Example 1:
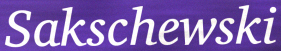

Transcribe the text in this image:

Sakschewski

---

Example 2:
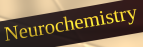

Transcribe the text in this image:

Neurochemistry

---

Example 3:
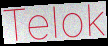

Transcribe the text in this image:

Telok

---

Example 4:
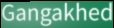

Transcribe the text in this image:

Gangakhed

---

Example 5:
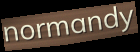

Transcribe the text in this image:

normandy